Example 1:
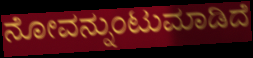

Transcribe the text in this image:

ನೋವನ್ನುಂಟುಮಾಡಿದೆ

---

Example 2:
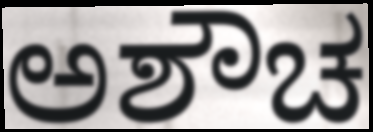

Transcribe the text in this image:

ಅಶೌಚ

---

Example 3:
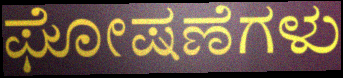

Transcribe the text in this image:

ಘೋಷಣೆಗಳು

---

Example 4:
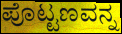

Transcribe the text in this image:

ಪೊಟ್ಟಣವನ್ನ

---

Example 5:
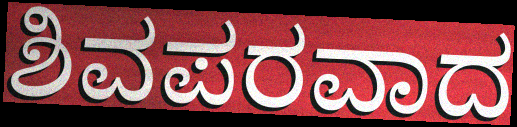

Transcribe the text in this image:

ಶಿವಪರವಾದ